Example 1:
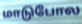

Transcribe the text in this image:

மாடுபோல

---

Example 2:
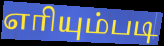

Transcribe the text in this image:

எரியும்படி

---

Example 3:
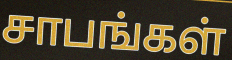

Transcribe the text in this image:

சாபங்கள்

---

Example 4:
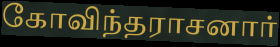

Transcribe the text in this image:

கோவிந்தராசனார்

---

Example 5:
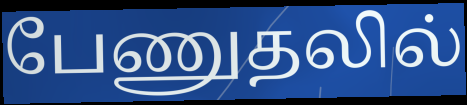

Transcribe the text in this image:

பேணுதலில்